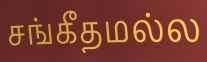
சங்கீதமல்ல